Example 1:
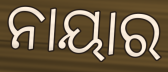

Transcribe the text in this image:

ନାୟାର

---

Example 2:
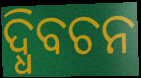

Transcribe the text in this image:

ଦ୍ଧିବଚନ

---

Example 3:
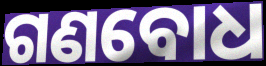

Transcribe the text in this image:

ଗଣବୋଧ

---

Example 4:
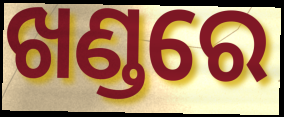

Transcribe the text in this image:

ଖଣ୍ଡରେ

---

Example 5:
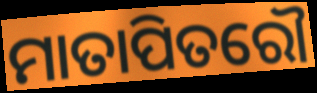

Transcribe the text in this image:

ମାତାପିତରୌ